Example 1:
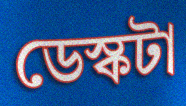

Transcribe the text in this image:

ডেস্কটা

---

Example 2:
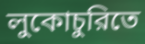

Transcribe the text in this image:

লুকোচুরিতে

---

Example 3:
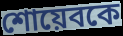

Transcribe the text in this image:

শোয়েবকে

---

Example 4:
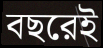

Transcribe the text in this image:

বছরেই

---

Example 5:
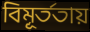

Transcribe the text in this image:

বিমূর্ততায়